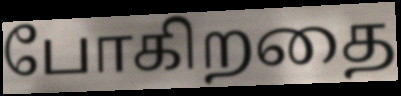
போகிறதை